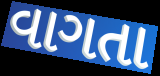
વાગતા